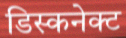
डिस्कनेक्ट